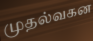
முதல்வகன